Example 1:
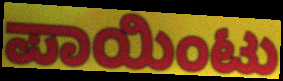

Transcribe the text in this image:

ಪಾಯಿಂಟು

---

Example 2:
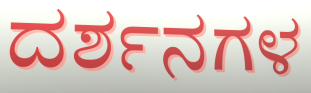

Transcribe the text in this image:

ದರ್ಶನಗಳ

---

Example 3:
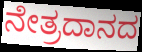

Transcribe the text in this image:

ನೇತ್ರದಾನದ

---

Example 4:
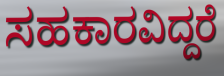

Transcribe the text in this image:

ಸಹಕಾರವಿದ್ದರೆ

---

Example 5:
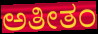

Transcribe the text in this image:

ಅತೀತಂ